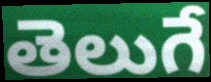
తెలుగే